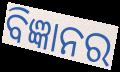
ବିଜ୍ଞାନର